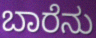
ಬಾರೆನು